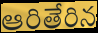
ఆరితేరిన